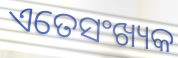
ଏତେସଂଖ୍ୟକ